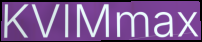
KVIMmax